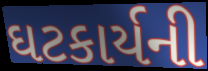
ઘટકાર્યની